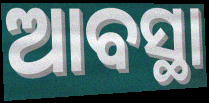
ଆବସ୍ଥା